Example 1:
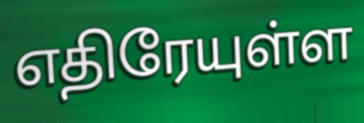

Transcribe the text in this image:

எதிரேயுள்ள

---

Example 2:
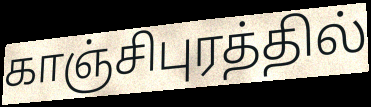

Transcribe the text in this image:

காஞ்சிபுரத்தில்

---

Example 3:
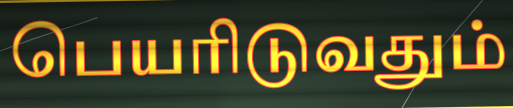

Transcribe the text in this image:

பெயரிடுவதும்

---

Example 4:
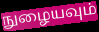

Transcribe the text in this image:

நுழையவும்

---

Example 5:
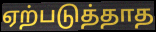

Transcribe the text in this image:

ஏற்படுத்தாத